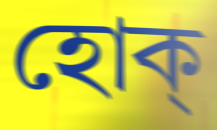
হোক্